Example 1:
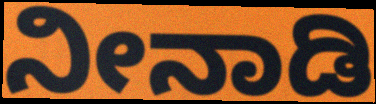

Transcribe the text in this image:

ನೀನಾಡಿ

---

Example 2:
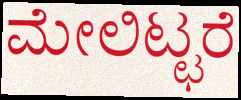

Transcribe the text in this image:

ಮೇಲಿಟ್ಟರೆ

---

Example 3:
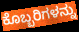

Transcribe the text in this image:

ಕೊಬ್ಬರಿಗಳನ್ನು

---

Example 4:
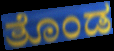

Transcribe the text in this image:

ತೊಂಡ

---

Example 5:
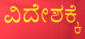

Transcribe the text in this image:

ವಿದೇಶಕ್ಕೆ